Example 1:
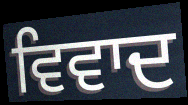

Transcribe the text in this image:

ਵਿਵਾਦ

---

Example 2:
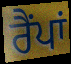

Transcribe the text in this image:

ਰੈਂਪਾਂ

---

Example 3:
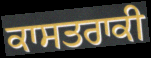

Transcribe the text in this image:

ਕਾਸਤਰਾਕੀ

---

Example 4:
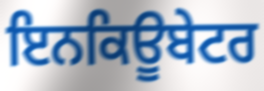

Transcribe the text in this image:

ਇਨਕਿਊਬੇਟਰ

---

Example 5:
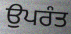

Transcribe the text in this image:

ਉਪਰੰਤ